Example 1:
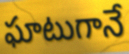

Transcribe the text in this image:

ఘాటుగానే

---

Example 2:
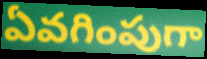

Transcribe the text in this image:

ఏవగింపుగా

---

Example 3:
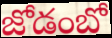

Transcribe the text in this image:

జోడంబో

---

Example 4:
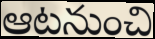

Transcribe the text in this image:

ఆటనుంచి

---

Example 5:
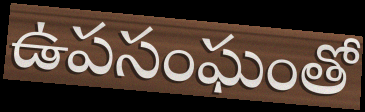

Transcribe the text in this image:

ఉపసంఘంతో